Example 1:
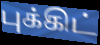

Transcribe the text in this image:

புக்கிட்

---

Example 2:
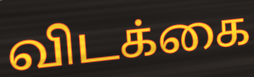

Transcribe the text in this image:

விடக்கை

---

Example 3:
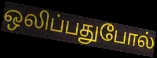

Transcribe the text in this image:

ஒலிப்பதுபோல்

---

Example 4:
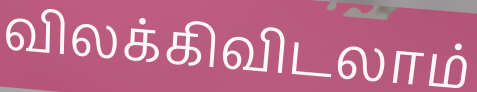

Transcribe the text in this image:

விலக்கிவிடலாம்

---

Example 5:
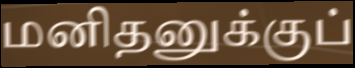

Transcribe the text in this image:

மனிதனுக்குப்